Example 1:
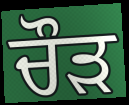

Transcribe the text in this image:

ਚੌੜ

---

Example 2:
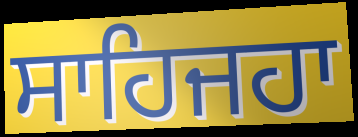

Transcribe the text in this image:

ਸਾਹਿਜਹਾ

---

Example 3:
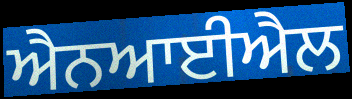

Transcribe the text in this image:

ਐਨਆਈਐਲ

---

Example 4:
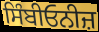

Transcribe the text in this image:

ਸਿੰਬੀਓਨੀਜ਼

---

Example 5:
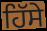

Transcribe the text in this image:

ਹਿੱਸੇ